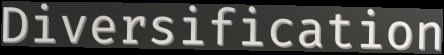
Diversification